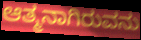
ಆತ್ಮನಾಗಿರುವನು